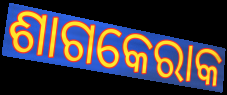
ଶାଗକେରାକ